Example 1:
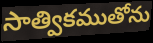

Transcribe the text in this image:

సాత్వికముతోను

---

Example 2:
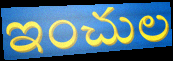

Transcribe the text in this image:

ఇంచుల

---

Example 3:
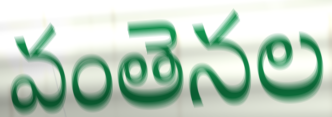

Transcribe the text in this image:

వంతెనల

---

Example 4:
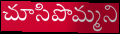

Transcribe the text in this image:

చూసిపొమ్మని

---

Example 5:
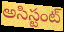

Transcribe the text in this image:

అసిస్టంట్